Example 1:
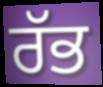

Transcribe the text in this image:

ਰੱਭ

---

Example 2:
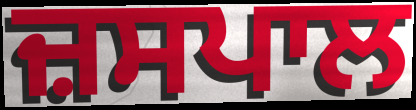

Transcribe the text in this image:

ਜ਼ਸਪਾਲ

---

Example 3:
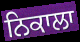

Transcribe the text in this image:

ਨਿਕਾਲਾ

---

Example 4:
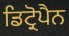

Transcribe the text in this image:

ਡਿਟ੍ਰੋਪੈਨ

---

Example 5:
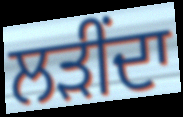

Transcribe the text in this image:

ਲੜੀਂਦਾ